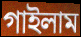
গাইলাম